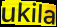
ukila